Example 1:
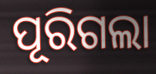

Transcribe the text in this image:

ପୂରିଗଲା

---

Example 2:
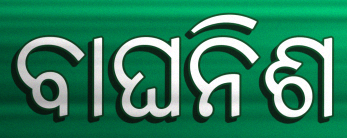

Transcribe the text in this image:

ବାଘନିଶ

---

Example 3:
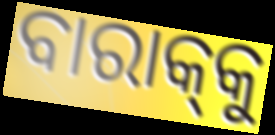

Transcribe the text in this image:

ବାରାକ୍‌କୁ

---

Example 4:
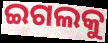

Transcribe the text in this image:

ଇଗଲକୁ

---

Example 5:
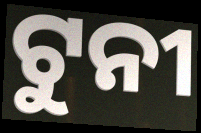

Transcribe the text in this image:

ଟୁନୀ